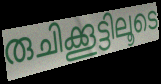
രുചിക്കൂട്ടിലൂടെ